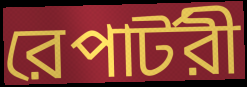
রেপার্টরী